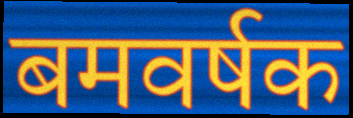
बमवर्षक